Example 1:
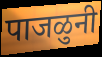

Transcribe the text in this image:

पाजळुनी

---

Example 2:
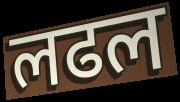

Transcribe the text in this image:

लढल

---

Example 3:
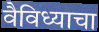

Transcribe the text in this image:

वैविध्याचा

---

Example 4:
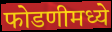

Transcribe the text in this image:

फोडणीमध्ये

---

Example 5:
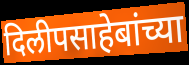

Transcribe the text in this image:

दिलीपसाहेबांच्या